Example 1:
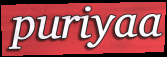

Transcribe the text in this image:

puriyaa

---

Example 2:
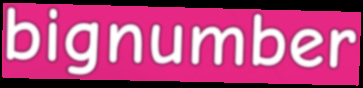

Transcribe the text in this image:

bignumber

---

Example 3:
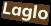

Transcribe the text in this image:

Laglo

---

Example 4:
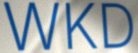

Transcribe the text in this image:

WKD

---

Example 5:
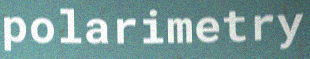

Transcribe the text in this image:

polarimetry